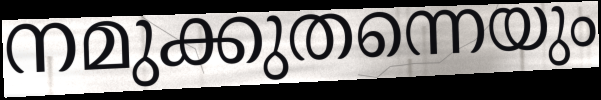
നമുക്കുതന്നെയും